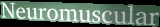
Neuromuscular